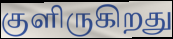
குளிருகிறது